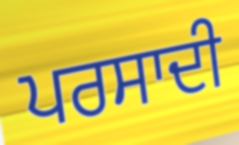
ਪਰਸਾਦੀ